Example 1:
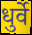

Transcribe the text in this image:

धुर्वे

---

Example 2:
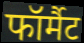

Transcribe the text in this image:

फॉर्मैट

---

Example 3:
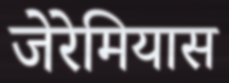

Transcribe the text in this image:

जेरेमियास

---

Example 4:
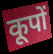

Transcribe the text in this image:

कूपों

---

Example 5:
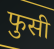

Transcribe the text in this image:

फुसी